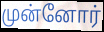
முன்னோர்